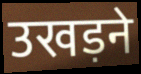
उखड़ने